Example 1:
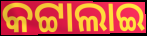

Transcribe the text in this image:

କଟ୍ଟାଲାଇ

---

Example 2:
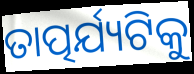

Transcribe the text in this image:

ତାତ୍ପର୍ଯ୍ୟଟିକୁ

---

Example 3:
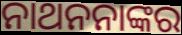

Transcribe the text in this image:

ନାଥନନାଙ୍କର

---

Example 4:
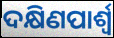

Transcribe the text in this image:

ଦକ୍ଷିଣପାର୍ଶ୍ବ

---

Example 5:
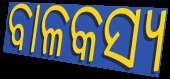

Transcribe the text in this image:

ବାଳକସ୍ୟ